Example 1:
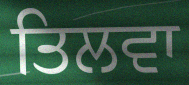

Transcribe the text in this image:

ਤਿਲਵਾ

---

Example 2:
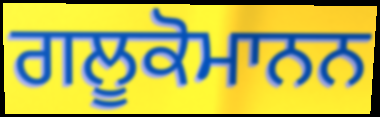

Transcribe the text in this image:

ਗਲੂਕੋਮਾਨਨ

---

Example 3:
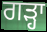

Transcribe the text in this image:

ਗੜ੍ਹਾ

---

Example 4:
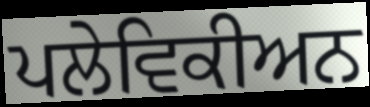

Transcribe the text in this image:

ਪਲੇਵਿਕੀਅਨ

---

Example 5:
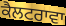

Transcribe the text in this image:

ਕੈਲਟਰਾਵਾ